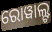
ରୋୱାଲ୍ଟ